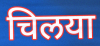
चिलया